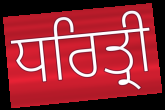
ਧਰਿਤ੍ਰੀ